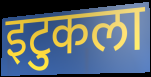
इटुकला